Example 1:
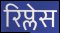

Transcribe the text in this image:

रिप्लेस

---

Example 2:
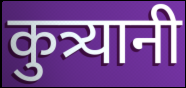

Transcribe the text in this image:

कुत्र्यानी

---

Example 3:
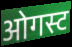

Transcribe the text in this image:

ओगस्ट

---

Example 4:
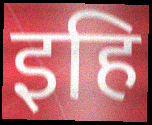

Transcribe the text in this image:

इहि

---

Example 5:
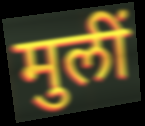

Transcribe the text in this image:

मुलीं